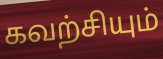
கவற்சியும்